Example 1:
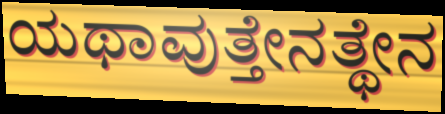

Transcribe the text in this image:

ಯಥಾವುತ್ತೇನತ್ಥೇನ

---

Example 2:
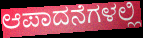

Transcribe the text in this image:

ಆಪಾದನೆಗಳಲ್ಲಿ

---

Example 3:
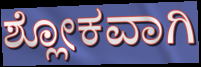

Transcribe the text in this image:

ಶ್ಲೋಕವಾಗಿ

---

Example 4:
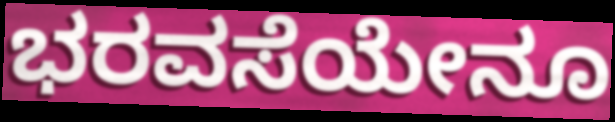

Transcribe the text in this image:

ಭರವಸೆಯೇನೂ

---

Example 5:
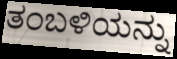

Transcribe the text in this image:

ತಂಬಳಿಯನ್ನು